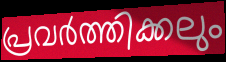
പ്രവർത്തിക്കലും